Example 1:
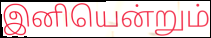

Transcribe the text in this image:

இனியென்றும்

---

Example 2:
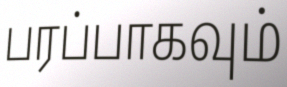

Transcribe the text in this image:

பரப்பாகவும்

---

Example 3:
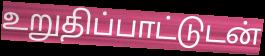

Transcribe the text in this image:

உறுதிப்பாட்டுடன்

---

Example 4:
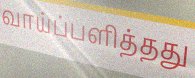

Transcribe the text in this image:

வாய்ப்பளித்தது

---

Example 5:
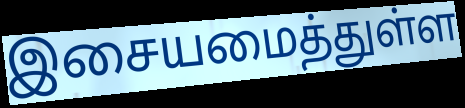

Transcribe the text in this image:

இசையமைத்துள்ள